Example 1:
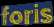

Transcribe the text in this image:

foris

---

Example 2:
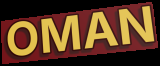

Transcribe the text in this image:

OMAN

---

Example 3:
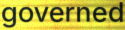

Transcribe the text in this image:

governed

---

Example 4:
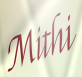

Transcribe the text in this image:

Mithi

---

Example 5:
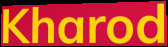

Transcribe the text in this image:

Kharod